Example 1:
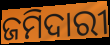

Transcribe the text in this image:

ଜମିଦାରୀ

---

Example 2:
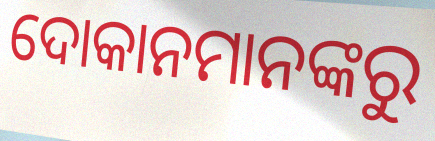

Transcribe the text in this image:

ଦୋକାନମାନଙ୍କରୁ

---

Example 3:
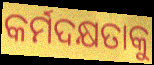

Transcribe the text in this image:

କର୍ମଦକ୍ଷତାକୁ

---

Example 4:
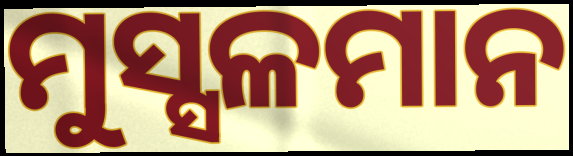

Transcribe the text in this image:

ମୁସ୍ସଳମାନ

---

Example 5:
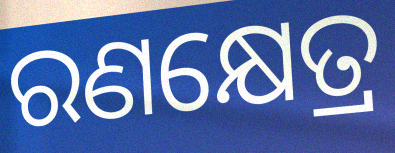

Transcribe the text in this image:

ରଣକ୍ଷେତ୍ର